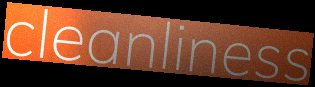
cleanliness